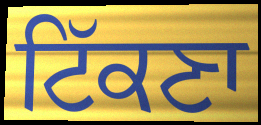
ਟਿੱਕਣਾ